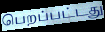
பெறப்பட்டது